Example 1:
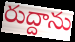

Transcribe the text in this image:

రుద్దాను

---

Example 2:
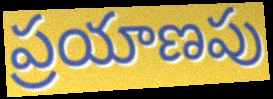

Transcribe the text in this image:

ప్రయాణపు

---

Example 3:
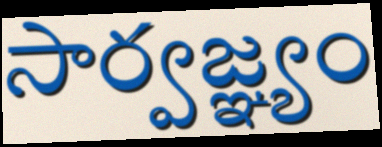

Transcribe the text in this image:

సార్వజ్ఞ్యం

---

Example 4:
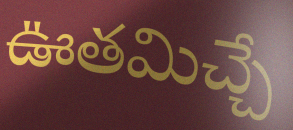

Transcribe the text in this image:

ఊతమిచ్చే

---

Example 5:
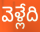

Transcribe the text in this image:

వెళ్లేది